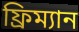
ফ্রিম্যান